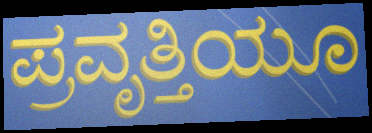
ಪ್ರವೃತ್ತಿಯೂ